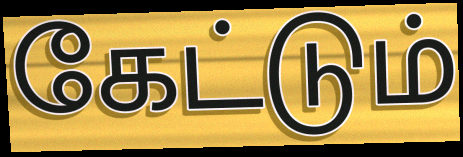
கேட்டும்